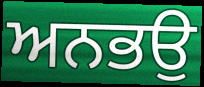
ਅਨਭਉ